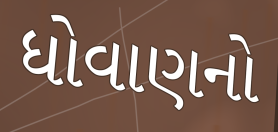
ધોવાણનો